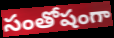
సంతోషంగా